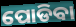
ପୋଡିବା